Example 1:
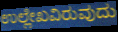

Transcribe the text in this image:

ಉಲ್ಲೇಖವಿರುವುದು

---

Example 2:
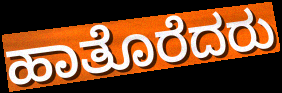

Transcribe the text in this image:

ಹಾತೊರೆದರು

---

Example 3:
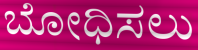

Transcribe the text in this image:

ಬೋಧಿಸಲು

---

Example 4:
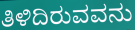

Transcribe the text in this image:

ತಿಳಿದಿರುವವನು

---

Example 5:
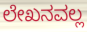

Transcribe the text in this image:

ಲೇಖನವಲ್ಲ